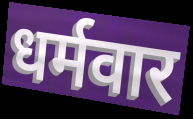
धर्मवार